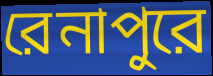
রেনাপুরে